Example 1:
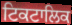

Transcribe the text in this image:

ਟਿਕਟਾਲਿਕ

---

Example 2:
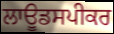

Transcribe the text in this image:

ਲਾਊਡਸਪੀਕਰ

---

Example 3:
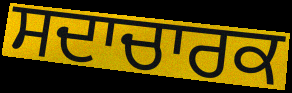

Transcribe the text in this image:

ਸਦਾਚਾਰਕ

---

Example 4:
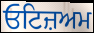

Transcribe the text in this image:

ਓਟਿਜ਼ਅਮ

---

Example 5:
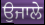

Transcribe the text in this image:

ਉਜਾਲੇ